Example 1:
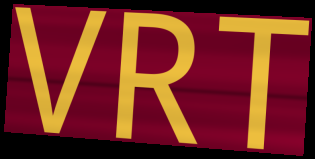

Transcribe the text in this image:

VRT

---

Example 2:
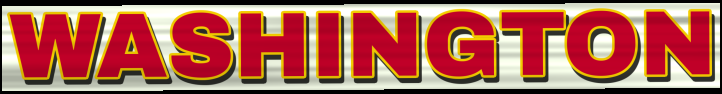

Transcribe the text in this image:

WASHINGTON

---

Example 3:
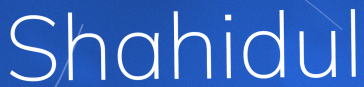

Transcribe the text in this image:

Shahidul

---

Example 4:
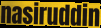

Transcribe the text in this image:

nasiruddin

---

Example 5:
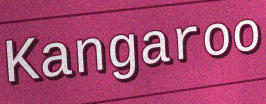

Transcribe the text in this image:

Kangaroo